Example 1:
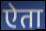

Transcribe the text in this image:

ऐता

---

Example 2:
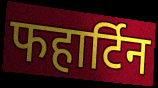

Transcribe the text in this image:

फहार्टिन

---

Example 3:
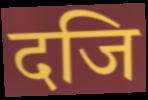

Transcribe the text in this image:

दजि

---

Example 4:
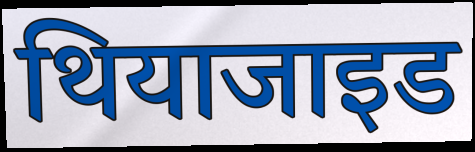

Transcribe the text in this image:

थियाजाइड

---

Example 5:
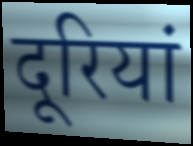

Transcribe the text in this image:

दूरियां